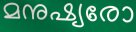
മനുഷ്യരോ